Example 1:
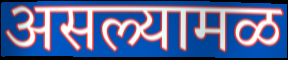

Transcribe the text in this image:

असल्यामळ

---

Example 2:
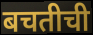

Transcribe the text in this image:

बचतीची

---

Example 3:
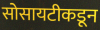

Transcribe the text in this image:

सोसायटीकडून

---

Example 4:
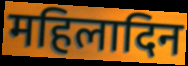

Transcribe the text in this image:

महिलादिन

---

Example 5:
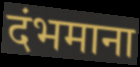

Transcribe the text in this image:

दंभमाना